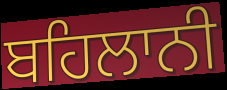
ਬਹਿਲਾਨੀ